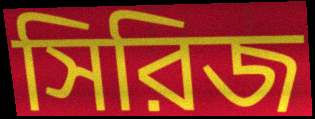
সিরিজ